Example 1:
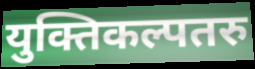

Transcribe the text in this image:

युक्तिकल्पतरु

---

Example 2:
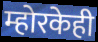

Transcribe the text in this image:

म्होरकेही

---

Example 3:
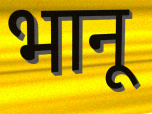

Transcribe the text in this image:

भानू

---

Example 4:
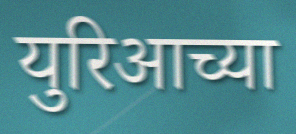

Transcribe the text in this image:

युरिआच्या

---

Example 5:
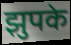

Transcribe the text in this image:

झुपके